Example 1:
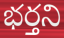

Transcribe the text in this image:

భర్తని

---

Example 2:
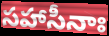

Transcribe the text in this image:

సహాసీనాః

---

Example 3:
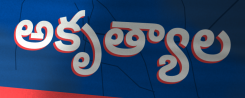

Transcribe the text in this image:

అకృత్యాల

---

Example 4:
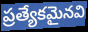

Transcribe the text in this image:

ప్రత్యేకమైనవి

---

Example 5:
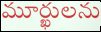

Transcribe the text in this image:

మూర్ఖులను